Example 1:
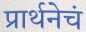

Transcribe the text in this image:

प्रार्थनेचं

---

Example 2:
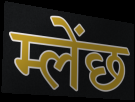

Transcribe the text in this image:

म्लेंछ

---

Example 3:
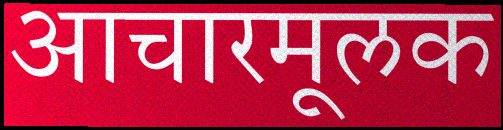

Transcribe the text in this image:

आचारमूलक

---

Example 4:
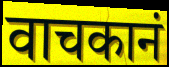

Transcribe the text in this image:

वाचकानं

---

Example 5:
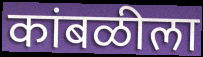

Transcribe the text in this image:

कांबळीला